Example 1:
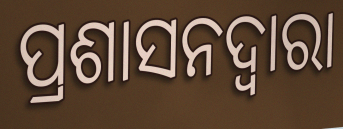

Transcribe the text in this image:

ପ୍ରଶାସନଦ୍ୱାରା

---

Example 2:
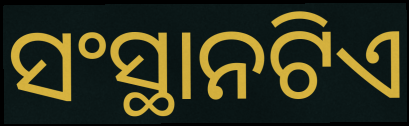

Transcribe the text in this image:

ସଂସ୍ଥାନଟିଏ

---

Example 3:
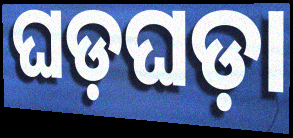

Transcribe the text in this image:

ଘଡ଼ଘଡ଼ା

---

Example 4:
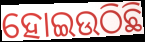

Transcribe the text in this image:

ହୋଇଉଠିଛି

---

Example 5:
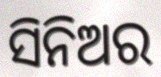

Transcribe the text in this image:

ସିନିଅର